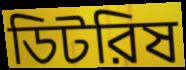
ডিটরিষ